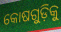
କୋଷଗୁଡ଼ିକୁ